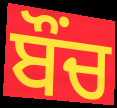
ਬੌਂਚ